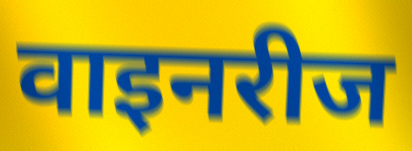
वाइनरीज